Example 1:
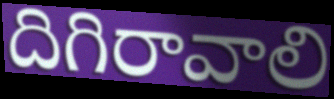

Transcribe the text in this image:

దిగిరావాలి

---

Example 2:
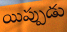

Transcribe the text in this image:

యిప్పుడు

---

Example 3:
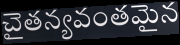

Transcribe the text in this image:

చైతన్యవంతమైన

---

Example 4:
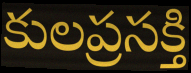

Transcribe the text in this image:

కులప్రసక్తి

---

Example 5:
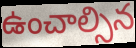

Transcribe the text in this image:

ఉంచాల్సిన